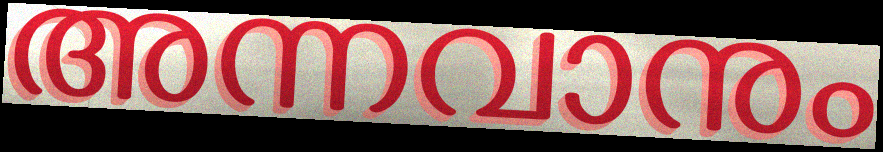
അന്നവാനും